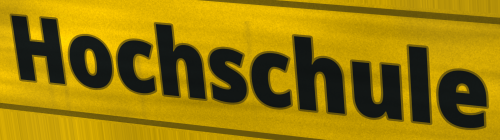
Hochschule